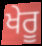
ਖੇਰੂ